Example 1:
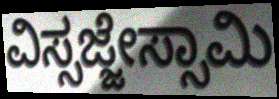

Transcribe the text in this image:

ವಿಸ್ಸಜ್ಜೇಸ್ಸಾಮಿ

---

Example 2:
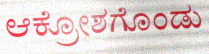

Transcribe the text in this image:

ಆಕ್ರೋಶಗೊಂಡು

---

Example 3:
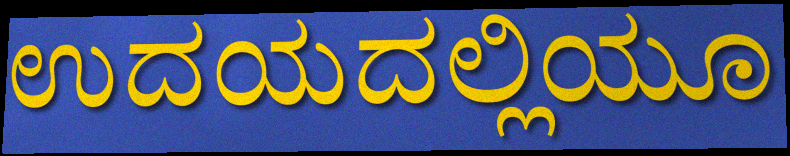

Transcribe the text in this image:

ಉದಯದಲ್ಲಿಯೂ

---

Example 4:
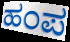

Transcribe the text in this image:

ಹಂಪ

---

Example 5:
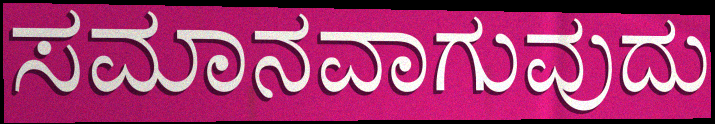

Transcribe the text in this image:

ಸಮಾನವಾಗುವುದು